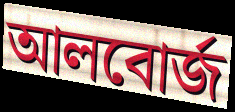
আলবোর্জ